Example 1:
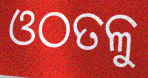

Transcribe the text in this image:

ଓଠତଳୁ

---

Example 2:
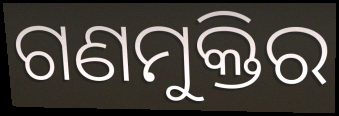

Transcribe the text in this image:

ଗଣମୁକ୍ତିର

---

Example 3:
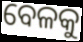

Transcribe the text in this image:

ବେଳକୁ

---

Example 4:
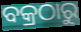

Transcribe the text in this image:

ବକ୍ରଠାରୁ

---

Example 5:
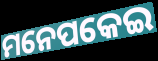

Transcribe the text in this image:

ମନେପକେଇ